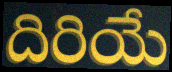
దిరియే